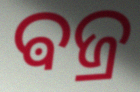
ଵଜ୍ର